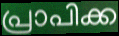
പ്രാപിക്ക